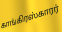
காங்கிரஸ்காரர்